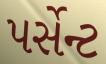
પર્સેન્ટ